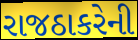
રાજઠાકરેની